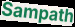
Sampath